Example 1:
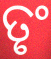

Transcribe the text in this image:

ତୃଂ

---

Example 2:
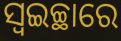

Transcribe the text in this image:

ସ୍ୱଇଚ୍ଛାରେ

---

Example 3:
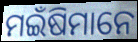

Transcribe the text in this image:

ମଇଁଷିମାନେ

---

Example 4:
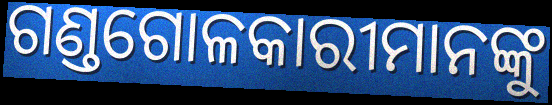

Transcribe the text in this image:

ଗଣ୍ଡଗୋଳକାରୀମାନଙ୍କୁ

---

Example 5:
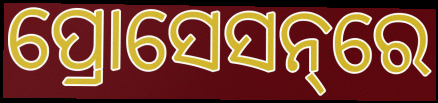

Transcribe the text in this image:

ପ୍ରୋସେସନ୍‌ରେ